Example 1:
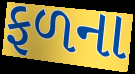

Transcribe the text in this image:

ફળના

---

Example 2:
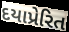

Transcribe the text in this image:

દયાપ્રેરિત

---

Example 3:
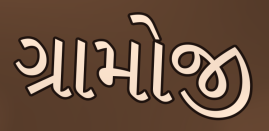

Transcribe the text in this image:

ગ્રામોજી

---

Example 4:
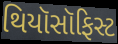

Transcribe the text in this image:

થિયૉસૉફિસ્ટ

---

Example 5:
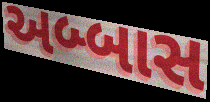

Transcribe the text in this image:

અબ્બાસ